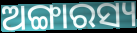
ଅଙ୍ଗାରସ୍ୟ